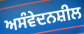
ਅਸੰਵੇਦਨਸ਼ੀਲ